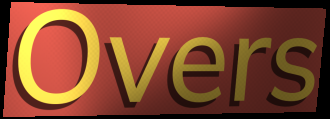
Overs